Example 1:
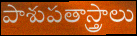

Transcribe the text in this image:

పాశుపతాస్త్రాలు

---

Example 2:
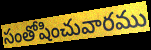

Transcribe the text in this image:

సంతోషించువారము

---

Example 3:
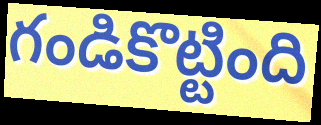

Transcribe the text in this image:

గండికొట్టింది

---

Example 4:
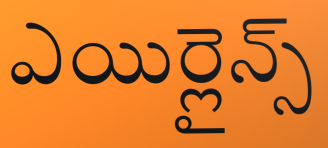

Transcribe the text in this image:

ఎయిర్లైన్స్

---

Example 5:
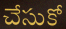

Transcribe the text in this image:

చేసుకో